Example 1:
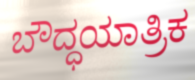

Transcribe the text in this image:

ಬೌದ್ಧಯಾತ್ರಿಕ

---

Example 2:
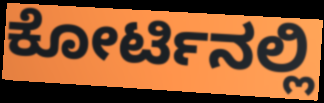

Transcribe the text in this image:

ಕೋರ್ಟಿನಲ್ಲಿ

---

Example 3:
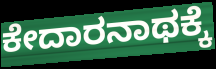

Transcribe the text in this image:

ಕೇದಾರನಾಥಕ್ಕೆ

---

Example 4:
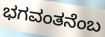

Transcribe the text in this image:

ಭಗವಂತನೆಂಬ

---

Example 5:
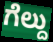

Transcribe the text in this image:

ಗೆಲ್ದು